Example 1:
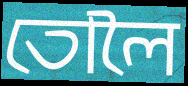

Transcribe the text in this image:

তোলৈ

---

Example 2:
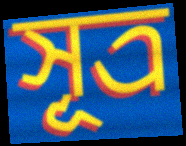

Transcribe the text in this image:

সূত্ৰ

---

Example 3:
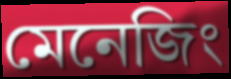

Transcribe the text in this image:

মেনেজিং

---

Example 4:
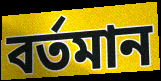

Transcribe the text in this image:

বৰ্তমান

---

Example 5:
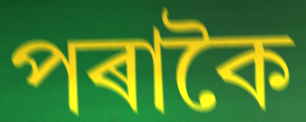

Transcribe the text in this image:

পৰাকৈ